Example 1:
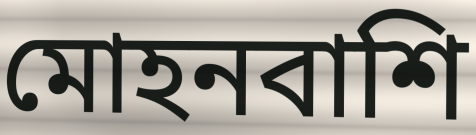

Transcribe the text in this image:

মোহনবাশি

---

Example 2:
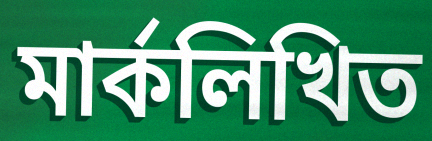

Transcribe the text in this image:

মার্কলিখিত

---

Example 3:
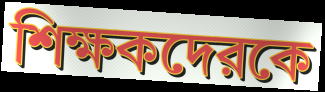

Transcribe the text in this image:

শিক্ষকদেরকে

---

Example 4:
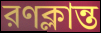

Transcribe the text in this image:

রণক্লান্ত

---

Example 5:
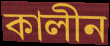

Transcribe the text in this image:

কালীন